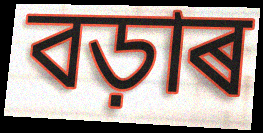
বড়াৰ